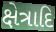
ક્ષેત્રાદિ